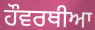
ਹੌਵਰਥੀਆ